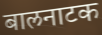
बालनाटक